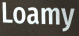
Loamy